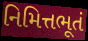
નિમિત્તભૂતં